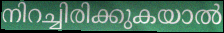
നിറച്ചിരിക്കുകയാൽ